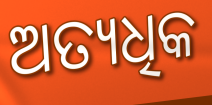
ଅତ୍ୟଧିକ